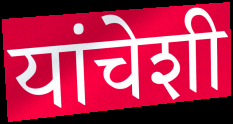
यांचेशी